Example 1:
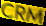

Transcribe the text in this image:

CRM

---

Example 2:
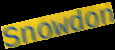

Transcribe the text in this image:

Snowdon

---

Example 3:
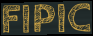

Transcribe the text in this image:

FIPIC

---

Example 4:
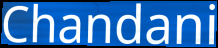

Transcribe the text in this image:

Chandani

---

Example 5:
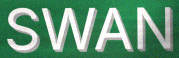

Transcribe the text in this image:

SWAN